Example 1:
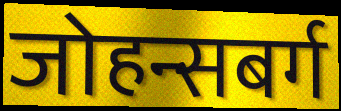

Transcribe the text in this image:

जोहन्सबर्ग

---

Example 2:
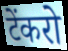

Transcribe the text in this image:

टेंकरो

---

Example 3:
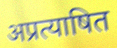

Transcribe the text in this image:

अप्रत्याषित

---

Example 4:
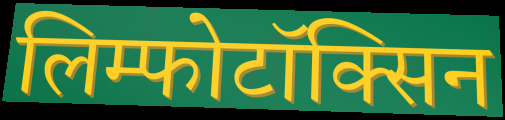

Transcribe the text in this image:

लिम्फोटॉक्सिन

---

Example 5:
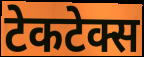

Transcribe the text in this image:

टेकटेक्स